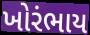
ખોરંભાય